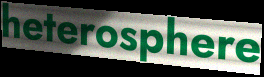
heterosphere